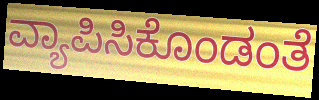
ವ್ಯಾಪಿಸಿಕೊಂಡಂತೆ